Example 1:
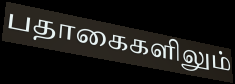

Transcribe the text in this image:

பதாகைகளிலும்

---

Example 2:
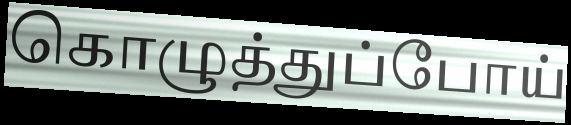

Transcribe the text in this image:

கொழுத்துப்போய்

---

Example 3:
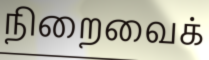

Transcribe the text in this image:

நிறைவைக்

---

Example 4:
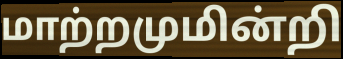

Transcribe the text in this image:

மாற்றமுமின்றி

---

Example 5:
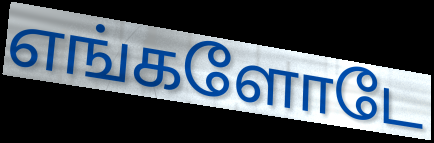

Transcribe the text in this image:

எங்களோடே